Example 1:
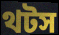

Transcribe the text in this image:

থটস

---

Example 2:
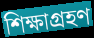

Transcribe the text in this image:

শিক্ষাগ্রহণ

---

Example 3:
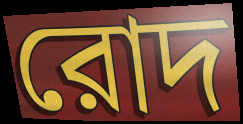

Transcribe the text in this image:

রোদ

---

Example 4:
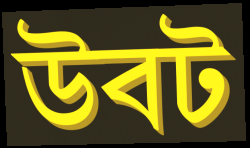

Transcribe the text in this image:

উবট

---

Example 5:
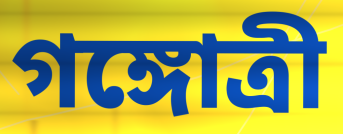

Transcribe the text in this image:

গঙ্গোত্রী